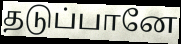
தடுப்பானே